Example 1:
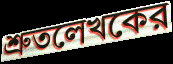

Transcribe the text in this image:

শ্রুতলেখকের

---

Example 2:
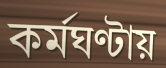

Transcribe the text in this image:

কর্মঘণ্টায়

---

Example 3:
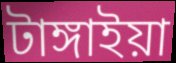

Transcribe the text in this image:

টাঙ্গাইয়া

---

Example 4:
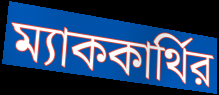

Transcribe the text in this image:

ম্যাককার্থির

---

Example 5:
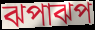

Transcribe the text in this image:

ঝপাঝপ